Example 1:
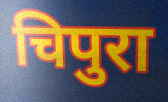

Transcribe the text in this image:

चिपुरा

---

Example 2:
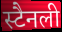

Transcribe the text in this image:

स्टैनली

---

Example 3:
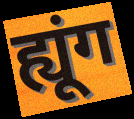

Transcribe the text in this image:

ह्यूंग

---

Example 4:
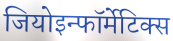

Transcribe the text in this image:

जियोइन्फॉर्मेटिक्स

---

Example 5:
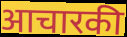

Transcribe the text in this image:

आचारकी